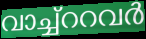
വാച്ച്ററവർ